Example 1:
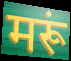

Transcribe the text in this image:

मरूं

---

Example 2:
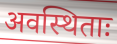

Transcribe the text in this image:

अवस्थिताः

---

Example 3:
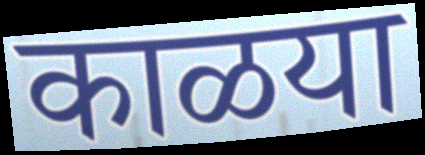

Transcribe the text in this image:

काळया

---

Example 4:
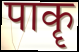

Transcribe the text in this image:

पाकॄ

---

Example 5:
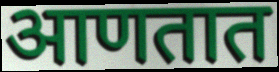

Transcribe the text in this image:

आणतात